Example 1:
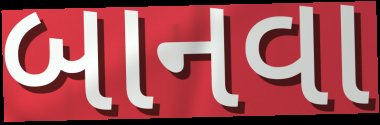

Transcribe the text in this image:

બાનવા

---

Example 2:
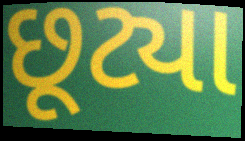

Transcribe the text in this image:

છૂટ્યા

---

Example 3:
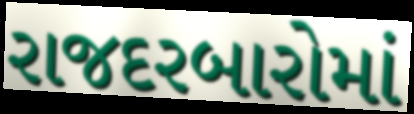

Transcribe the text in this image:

રાજદરબારોમાં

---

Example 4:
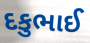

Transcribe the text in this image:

દકુભાઈ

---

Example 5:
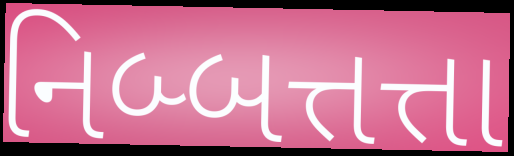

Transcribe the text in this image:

નિબ્બત્તત્તા